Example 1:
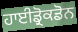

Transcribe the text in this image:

ਹਾਈਡ੍ਰੋਕਡੋਨ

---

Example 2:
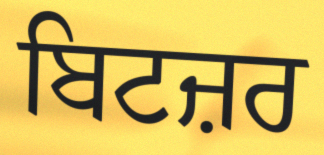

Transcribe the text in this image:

ਬਿਟਜ਼ਰ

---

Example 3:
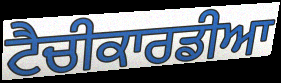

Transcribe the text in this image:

ਟੈਚੀਕਾਰਡੀਆ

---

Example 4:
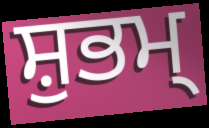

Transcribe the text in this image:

ਸ਼ੁਭਮ੍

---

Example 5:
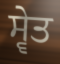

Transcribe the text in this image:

ਸ੍ਵੇਤ